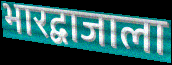
भारद्वाजाला